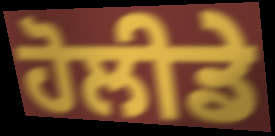
ਹੋਲੀਡੇ